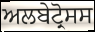
ਅਲਬੇਟ੍ਰੋਸਸ